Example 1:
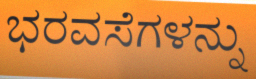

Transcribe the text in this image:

ಭರವಸೆಗಳನ್ನು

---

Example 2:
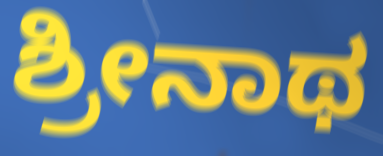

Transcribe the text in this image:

ಶ್ರೀನಾಥ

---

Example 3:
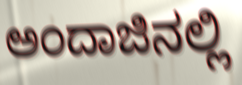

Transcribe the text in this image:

ಅಂದಾಜಿನಲ್ಲಿ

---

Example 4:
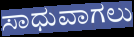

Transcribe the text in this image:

ಸಾಧುವಾಗಲು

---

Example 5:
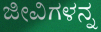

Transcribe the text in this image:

ಜೀವಿಗಳನ್ನ